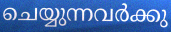
ചെയ്യുന്നവർക്കു